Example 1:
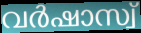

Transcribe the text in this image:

വർഷാസ്വ്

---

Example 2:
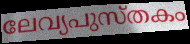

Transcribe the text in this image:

ലേവ്യപുസ്തകം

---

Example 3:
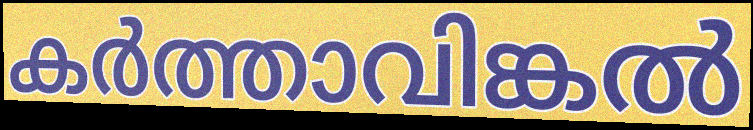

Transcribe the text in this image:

കർത്താവിങ്കൽ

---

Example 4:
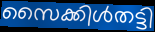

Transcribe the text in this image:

സൈക്കിൾതട്ടി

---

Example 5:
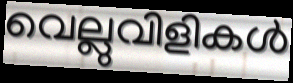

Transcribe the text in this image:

വെല്ലുവിളികൾ